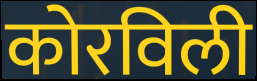
कोरविली